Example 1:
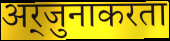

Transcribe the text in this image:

अर्जुनाकरता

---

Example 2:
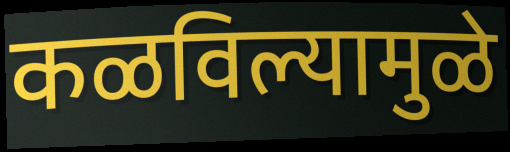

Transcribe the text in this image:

कळविल्यामुळे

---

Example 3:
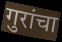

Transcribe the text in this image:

गुरांचा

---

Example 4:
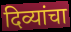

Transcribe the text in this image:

दिव्यांचा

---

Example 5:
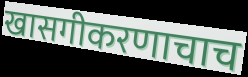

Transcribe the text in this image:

खासगीकरणाचाच